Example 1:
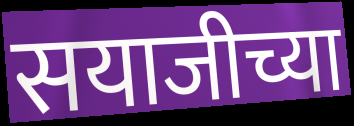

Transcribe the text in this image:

सयाजीच्या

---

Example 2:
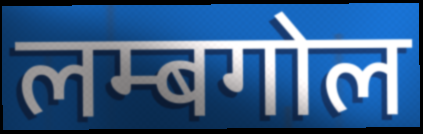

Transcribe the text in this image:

लम्बगोल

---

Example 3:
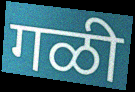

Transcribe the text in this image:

गळी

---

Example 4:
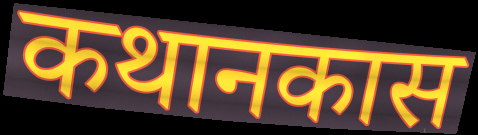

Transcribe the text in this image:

कथानकास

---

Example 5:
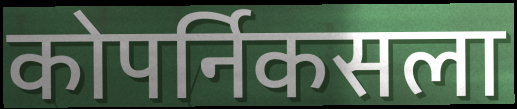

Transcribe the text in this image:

कोपर्निकसला